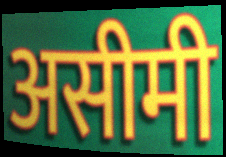
असीमी